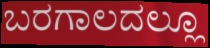
ಬರಗಾಲದಲ್ಲೂ